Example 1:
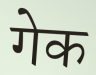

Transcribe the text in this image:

गेक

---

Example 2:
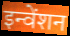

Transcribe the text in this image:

इन्वेंशन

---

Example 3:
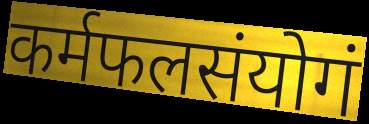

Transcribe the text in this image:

कर्मफलसंयोगं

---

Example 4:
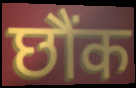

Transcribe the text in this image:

छौंक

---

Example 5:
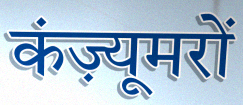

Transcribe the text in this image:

कंज़्यूमरों